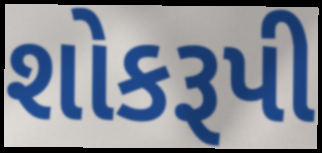
શોકરૂપી